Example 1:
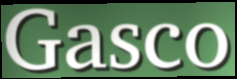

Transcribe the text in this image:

Gasco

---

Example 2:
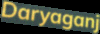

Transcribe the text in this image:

Daryaganj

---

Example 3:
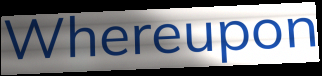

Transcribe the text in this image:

Whereupon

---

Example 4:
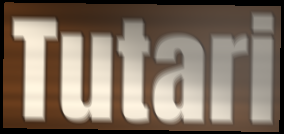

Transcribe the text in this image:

Tutari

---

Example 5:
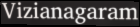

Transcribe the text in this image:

Vizianagaram